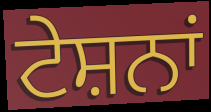
ਟੇਸ਼ਨਾਂ